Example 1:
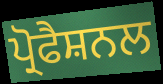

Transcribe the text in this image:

ਪ੍ਰੋਫੈਸ਼ਨਲ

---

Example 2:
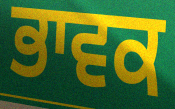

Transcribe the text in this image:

ਭਾਵਕ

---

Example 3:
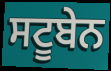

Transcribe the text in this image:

ਸਟੂਬੇਨ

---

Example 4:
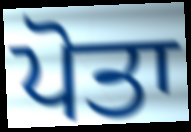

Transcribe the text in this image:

ਪੋਤਾ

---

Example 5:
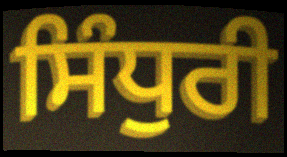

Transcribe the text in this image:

ਸਿੰਧੁਰੀ